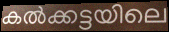
കൽക്കട്ടയിലെ